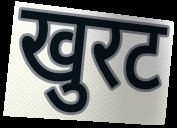
खुरट